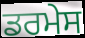
ਡਰਮੇਸ